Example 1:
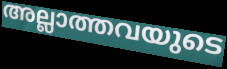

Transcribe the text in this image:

അല്ലാത്തവയുടെ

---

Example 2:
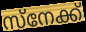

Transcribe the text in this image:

സ്നേക്ക്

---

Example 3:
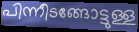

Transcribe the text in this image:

പിന്നീടങ്ങോട്ടുള്ള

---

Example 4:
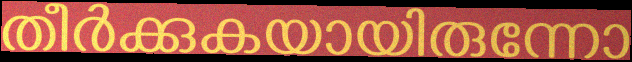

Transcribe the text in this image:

തീർക്കുകയായിരുന്നോ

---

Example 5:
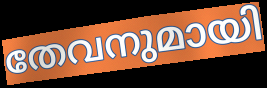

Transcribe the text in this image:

തേവനുമായി